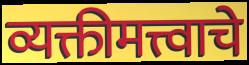
व्यक्तीमत्त्वाचे